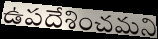
ఉపదేశించమని